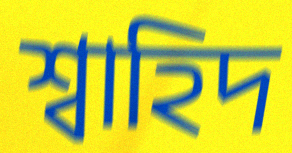
শ্বাহিদ